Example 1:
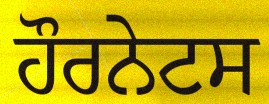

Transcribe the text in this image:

ਹੌਰਨੇਟਸ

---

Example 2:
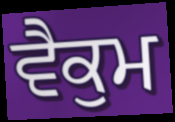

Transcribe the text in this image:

ਵੈਕੁਮ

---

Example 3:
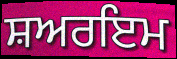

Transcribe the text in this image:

ਸ਼ਅਰਇਮ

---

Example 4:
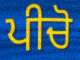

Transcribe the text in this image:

ਪੀਚੋ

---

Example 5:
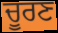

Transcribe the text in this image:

ਚੂਰਣ